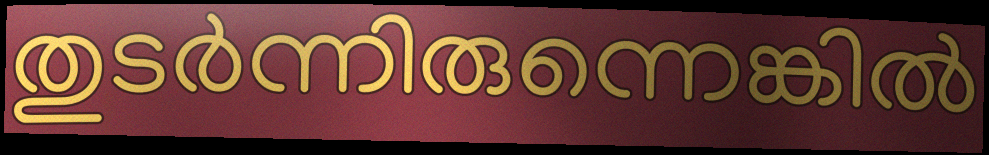
തുടർന്നിരുന്നെങ്കിൽ